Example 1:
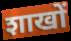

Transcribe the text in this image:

शाखों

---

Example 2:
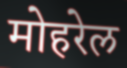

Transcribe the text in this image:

मोहरेल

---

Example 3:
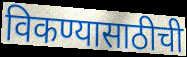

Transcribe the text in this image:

विकण्यासाठीची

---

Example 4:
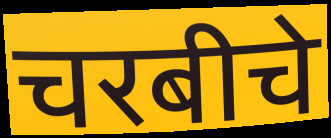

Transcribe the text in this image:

चरबीचे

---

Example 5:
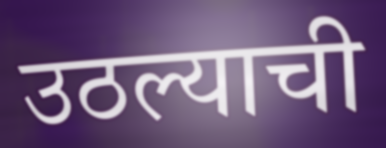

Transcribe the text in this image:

उठल्याची